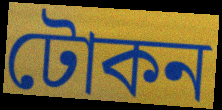
টোকন